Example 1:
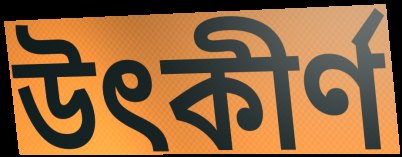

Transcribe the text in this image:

উৎকীর্ণ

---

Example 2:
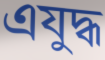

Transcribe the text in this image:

এযুদ্ধ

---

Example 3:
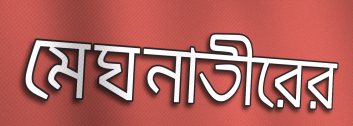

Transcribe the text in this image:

মেঘনাতীরের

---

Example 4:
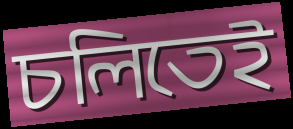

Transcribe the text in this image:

চলিতেই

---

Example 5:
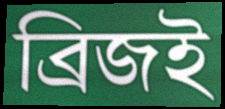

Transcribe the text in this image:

ব্রিজই